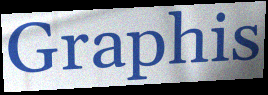
Graphis